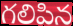
గలిపిన